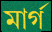
মাৰ্গ